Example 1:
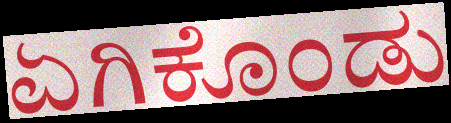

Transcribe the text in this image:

ಏಗಿಕೊಂಡು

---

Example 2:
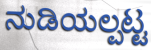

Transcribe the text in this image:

ನುಡಿಯಲ್ಪಟ್ಟ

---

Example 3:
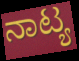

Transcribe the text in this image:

ನಾಟ್ಯ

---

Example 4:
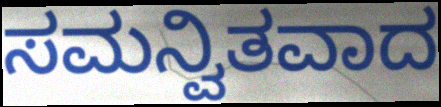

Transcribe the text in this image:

ಸಮನ್ವಿತವಾದ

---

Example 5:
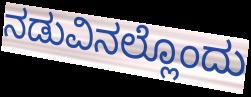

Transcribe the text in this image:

ನಡುವಿನಲ್ಲೊಂದು